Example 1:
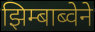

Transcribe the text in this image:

झिम्बाब्वेने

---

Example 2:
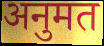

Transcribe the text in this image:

अनुमत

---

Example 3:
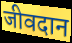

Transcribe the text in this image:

जीवदान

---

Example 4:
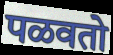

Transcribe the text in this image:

पळवतो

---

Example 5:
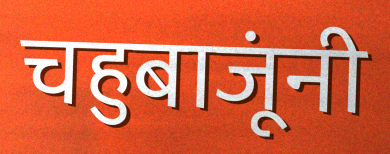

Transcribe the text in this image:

चहुबाजूंनी